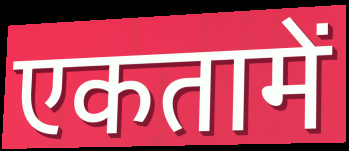
एकतामें